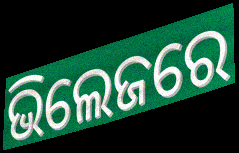
ଭିଲେଜରେ